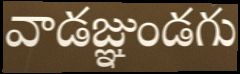
వాడజ్ఞుండగు